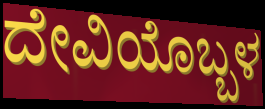
ದೇವಿಯೊಬ್ಬಳ